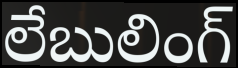
లేబులింగ్